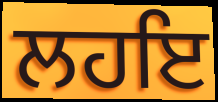
ਲਹਇ